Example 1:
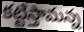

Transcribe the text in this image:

కట్టిస్తామన్న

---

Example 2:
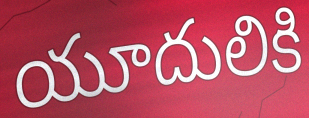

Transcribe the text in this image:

యూదులికి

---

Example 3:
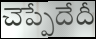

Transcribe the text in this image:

చెప్పేదేదీ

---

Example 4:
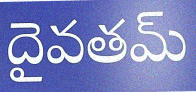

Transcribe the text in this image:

దైవతమ్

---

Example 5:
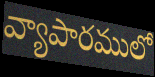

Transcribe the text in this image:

వ్యాపారములో